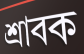
শ্রাবক